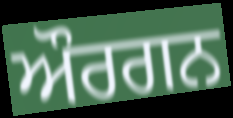
ਔਰਗਨ